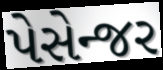
પેસેન્જર